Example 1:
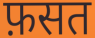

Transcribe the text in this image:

फ़सत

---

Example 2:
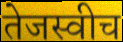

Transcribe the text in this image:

तेजस्वीच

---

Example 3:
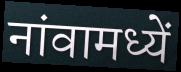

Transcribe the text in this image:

नांवामध्यें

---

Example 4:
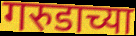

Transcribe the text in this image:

गरुडाच्या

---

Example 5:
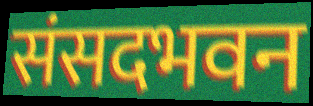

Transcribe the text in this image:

संसदभवन